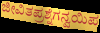
ಜೀವಿತಪ್ರಶ್ನೆಗನ್ವಯಿಪ